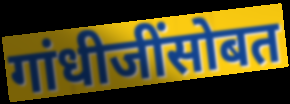
गांधीजींसोबत